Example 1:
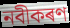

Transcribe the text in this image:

নবীকৰণ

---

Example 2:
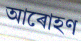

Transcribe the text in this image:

আৰোহণ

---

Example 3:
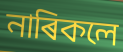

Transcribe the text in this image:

নাৰিকলে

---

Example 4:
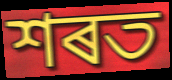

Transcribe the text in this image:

শৰত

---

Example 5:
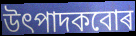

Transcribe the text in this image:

উৎপাদকবোৰ